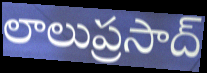
లాలుప్రసాద్